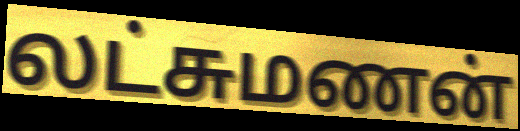
லட்சுமணன்